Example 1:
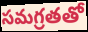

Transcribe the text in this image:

సమగ్రతతో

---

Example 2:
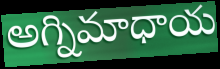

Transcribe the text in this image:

అగ్నిమాధాయ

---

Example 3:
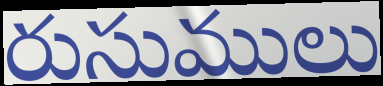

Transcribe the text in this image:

రుసుములు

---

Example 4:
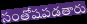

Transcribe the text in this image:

సంతోషపడతారు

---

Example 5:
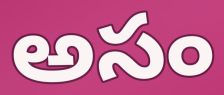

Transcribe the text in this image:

అసం